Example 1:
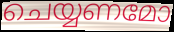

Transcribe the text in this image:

ചെയ്യണമോ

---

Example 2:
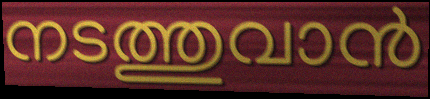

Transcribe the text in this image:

നടത്തുവാൻ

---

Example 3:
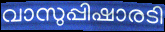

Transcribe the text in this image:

വാസുപ്പിഷാരടി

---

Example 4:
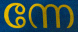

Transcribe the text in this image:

ന്നേ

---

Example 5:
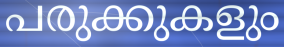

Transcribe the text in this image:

പരുക്കുകളും